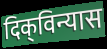
दिक्‌विन्यास